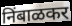
निंबाळकर